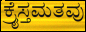
ಕ್ರೈಸ್ತಮತವು